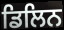
ਡਿਲਿਨ